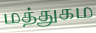
மத்துகம